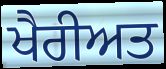
ਖੈਰੀਅਤ